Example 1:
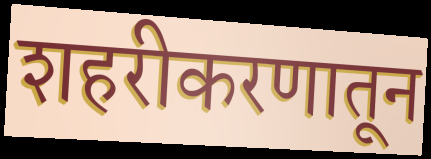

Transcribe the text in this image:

शहरीकरणातून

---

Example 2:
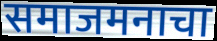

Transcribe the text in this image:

समाजमनाचा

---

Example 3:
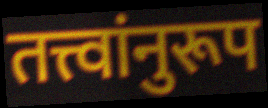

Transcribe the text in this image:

तत्त्वांनुरूप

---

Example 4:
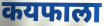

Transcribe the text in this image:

कयफाला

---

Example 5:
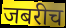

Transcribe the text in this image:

जबरीच